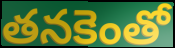
తనకెంతో